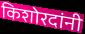
किशोरदांनी